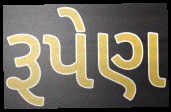
રૂપેણ